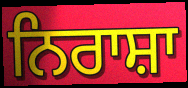
ਨਿਰਾਸ਼ਾ